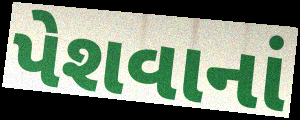
પેશવાનાં